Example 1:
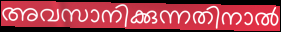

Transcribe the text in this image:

അവസാനിക്കുന്നതിനാൽ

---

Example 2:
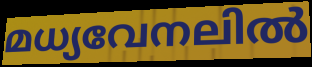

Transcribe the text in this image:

മധ്യവേനലിൽ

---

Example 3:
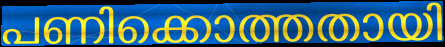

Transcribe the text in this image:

പണിക്കൊത്തതായി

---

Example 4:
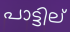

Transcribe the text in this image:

പാട്ടില്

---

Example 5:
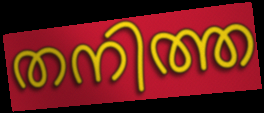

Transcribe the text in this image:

തനിത്ത